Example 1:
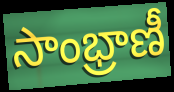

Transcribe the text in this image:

సాంభ్రాణీ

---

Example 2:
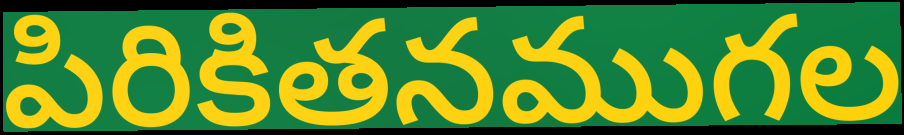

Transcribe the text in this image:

పిరికితనముగల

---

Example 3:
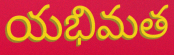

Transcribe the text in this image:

యభిమత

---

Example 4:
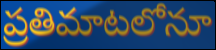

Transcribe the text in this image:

ప్రతిమాటలోనూ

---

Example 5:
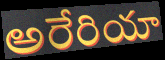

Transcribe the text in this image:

అరేరియా